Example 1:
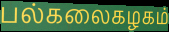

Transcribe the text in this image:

பல்கலைகழகம்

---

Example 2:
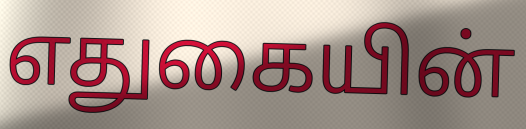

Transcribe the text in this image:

எதுகையின்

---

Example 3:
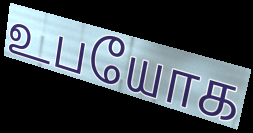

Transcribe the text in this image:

உபயோக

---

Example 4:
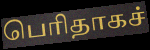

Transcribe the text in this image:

பெரிதாகச்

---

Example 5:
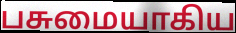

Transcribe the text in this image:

பசுமையாகிய